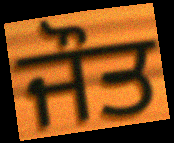
ਜੌਤ